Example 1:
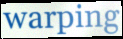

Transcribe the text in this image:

warping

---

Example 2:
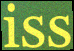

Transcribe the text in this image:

iss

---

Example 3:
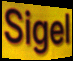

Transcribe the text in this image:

Sigel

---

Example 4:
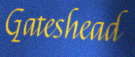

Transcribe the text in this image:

Gateshead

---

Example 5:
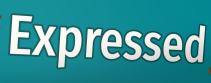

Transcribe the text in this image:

Expressed